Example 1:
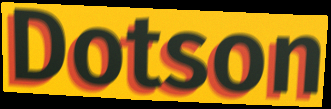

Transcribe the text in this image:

Dotson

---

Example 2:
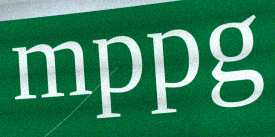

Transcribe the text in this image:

mppg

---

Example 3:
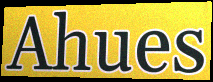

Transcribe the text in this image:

Ahues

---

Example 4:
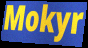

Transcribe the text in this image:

Mokyr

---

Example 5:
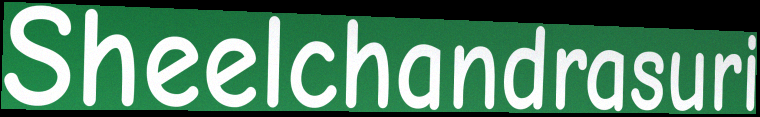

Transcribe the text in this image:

Sheelchandrasuri